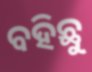
ବହିଛୁ